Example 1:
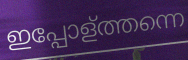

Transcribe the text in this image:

ഇപ്പോള്ത്തന്നെ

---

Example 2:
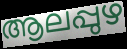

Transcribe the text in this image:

ആലപ്പുഴ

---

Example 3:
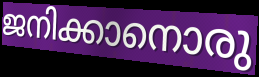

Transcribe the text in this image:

ജനിക്കാനൊരു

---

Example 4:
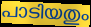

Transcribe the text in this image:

പാടിയതും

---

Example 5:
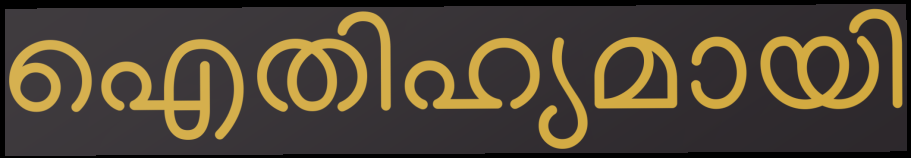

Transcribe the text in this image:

ഐതിഹ്യമായി